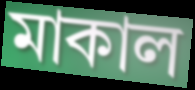
মাকাল